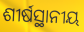
ଶୀର୍ଷସ୍ଥାନୀୟ